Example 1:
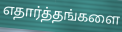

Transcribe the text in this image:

எதார்த்தங்களை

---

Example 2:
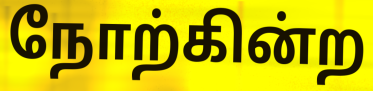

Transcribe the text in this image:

நோற்கின்ற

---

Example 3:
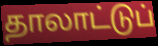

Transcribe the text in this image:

தாலாட்டுப்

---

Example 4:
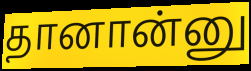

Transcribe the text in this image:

தானான்னு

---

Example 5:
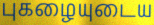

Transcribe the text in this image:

புகழையுடைய